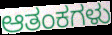
ಆತಂಕಗಳು